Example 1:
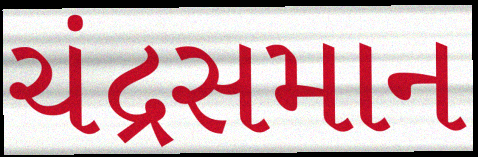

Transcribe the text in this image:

ચંદ્રસમાન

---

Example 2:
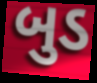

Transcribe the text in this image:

બુડ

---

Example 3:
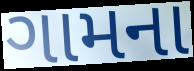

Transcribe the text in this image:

ગામના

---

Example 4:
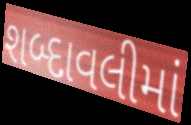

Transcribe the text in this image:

શબ્દાવલીમાં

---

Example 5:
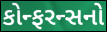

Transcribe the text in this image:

કોન્ફરન્સનો